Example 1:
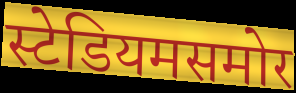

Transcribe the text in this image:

स्टेडियमसमोर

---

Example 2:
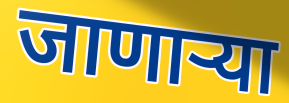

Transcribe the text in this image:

जाणाऱ्या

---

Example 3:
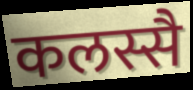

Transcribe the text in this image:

कलस्सै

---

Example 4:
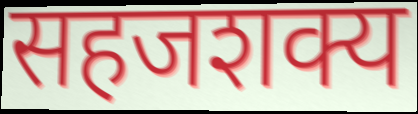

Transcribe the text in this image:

सहजशक्य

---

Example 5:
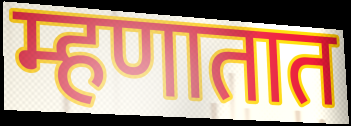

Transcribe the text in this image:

म्हणातात